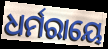
ଧର୍ମରାୟେ